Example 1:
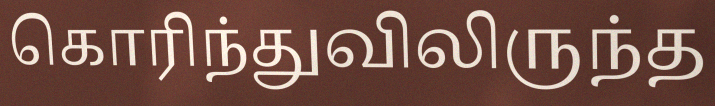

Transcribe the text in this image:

கொரிந்துவிலிருந்த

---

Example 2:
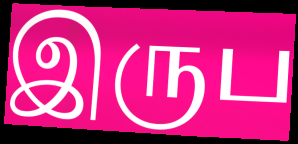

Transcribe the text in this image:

இருப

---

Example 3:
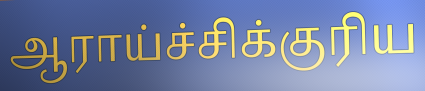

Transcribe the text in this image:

ஆராய்ச்சிக்குரிய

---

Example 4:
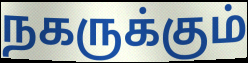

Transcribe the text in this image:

நகருக்கும்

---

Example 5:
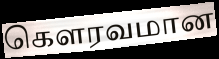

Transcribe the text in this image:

கெளரவமான